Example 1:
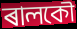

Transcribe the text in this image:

ৰালকৌ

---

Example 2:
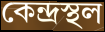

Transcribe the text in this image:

কেন্দ্ৰস্থল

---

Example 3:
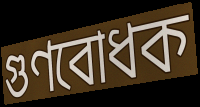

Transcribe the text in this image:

গুণবোধক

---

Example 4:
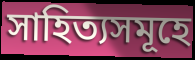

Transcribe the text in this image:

সাহিত্যসমূহে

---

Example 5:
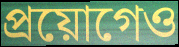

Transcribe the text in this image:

প্ৰয়োগেও